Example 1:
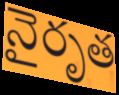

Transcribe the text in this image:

నైరృత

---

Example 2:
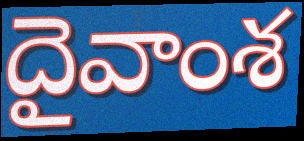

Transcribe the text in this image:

దైవాంశ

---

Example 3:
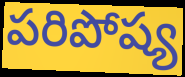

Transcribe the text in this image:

పరిపోష్య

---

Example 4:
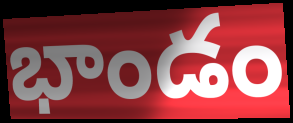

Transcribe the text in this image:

భాండం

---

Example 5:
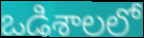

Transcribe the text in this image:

ఒడిశాలలో